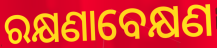
ରକ୍ଷଣାବେକ୍ଷଣ